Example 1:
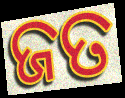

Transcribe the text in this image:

ଜତ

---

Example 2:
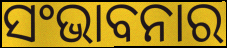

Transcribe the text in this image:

ସଂଭାବନାର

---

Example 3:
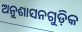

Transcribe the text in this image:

ଅନୁଶାସନଗୁଡ଼ିକ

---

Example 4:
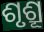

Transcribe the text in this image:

ଶୃଶ୍ରୂ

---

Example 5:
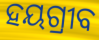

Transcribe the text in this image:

ହୟଗ୍ରୀବ